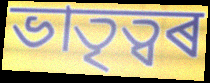
ভাতৃত্বৰ